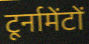
टूर्नामेंटों